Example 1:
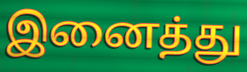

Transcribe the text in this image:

இனைத்து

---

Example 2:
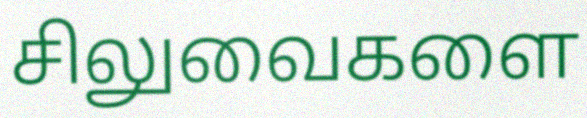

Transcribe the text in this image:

சிலுவைகளை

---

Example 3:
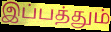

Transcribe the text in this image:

இப்பத்தும்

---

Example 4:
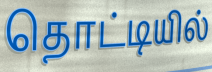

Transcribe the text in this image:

தொட்டியில்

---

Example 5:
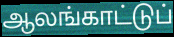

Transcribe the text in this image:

ஆலங்காட்டுப்